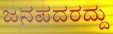
ಜನಪದರದ್ದು